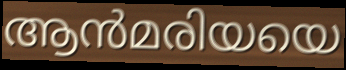
ആൻമരിയയെ